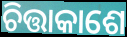
ଚିତ୍ତାକାଶେ